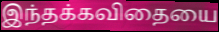
இந்தக்கவிதையை